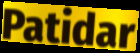
Patidar